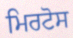
ਮਿਰਟੋਸ